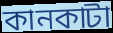
কানকাটা